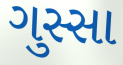
ગુસ્સા